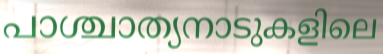
പാശ്ചാത്യനാടുകളിലെ